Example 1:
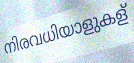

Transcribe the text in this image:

നിരവധിയാളുകള്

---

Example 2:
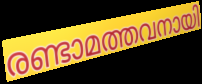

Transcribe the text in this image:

രണ്ടാമത്തവനായി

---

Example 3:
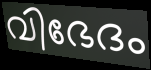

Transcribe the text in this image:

വിഭേദം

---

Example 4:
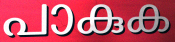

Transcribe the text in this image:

പാകുക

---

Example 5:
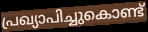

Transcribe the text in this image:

പ്രഖ്യാപിച്ചുകൊണ്ട്